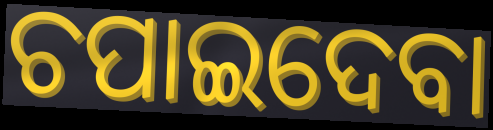
ଚପାଇଦେବା